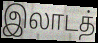
இலாடத்